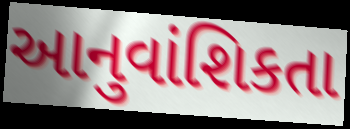
આનુવાંશિકતા